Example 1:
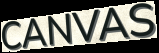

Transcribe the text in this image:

CANVAS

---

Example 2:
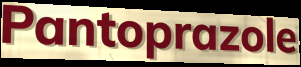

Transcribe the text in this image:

Pantoprazole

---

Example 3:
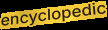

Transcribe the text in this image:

encyclopedic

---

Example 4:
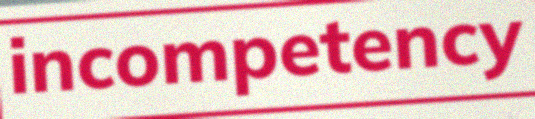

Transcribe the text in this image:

incompetency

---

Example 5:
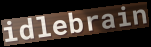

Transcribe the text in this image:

idlebrain